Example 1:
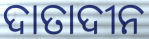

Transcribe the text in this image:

ଦାତାଦୀନ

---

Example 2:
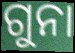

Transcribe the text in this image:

ଗୁନା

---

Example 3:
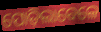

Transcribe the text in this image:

ପୋଡ଼ିଲାବେଳେ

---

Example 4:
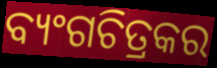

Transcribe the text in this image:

ବ୍ୟଂଗଚିତ୍ରକର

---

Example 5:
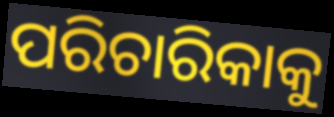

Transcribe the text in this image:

ପରିଚାରିକାକୁ